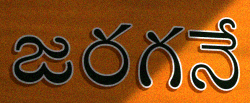
జరగనే